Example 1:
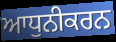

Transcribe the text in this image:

ਆਧੁਨੀਕਰਨ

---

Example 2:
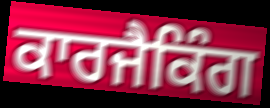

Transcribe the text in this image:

ਕਾਰਜੈਕਿੰਗ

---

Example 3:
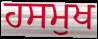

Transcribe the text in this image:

ਹਸਮੁਖ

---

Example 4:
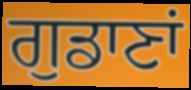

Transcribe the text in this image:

ਗੁਡਾਣਾਂ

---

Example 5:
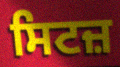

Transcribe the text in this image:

ਸਿਟਜ਼